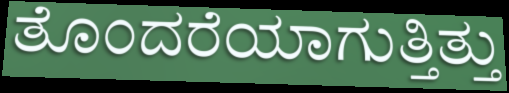
ತೊಂದರೆಯಾಗುತ್ತಿತ್ತು